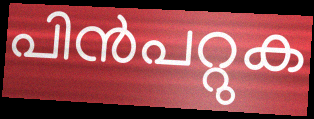
പിൻപറ്റുക